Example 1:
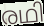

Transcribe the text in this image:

രഥി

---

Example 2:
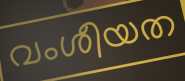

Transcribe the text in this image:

വംശീയത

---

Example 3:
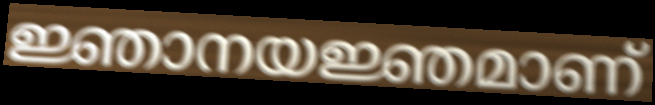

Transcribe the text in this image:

ജ്ഞാനയജ്ഞമാണ്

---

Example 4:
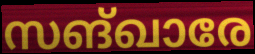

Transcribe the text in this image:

സങ്ഖാരേ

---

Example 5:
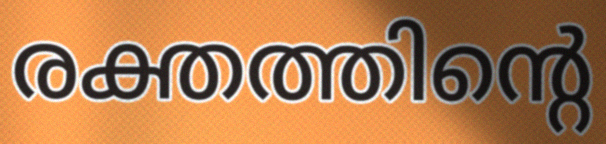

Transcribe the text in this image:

രക്തത്തിന്റെ